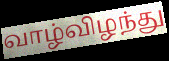
வாழ்விழந்து